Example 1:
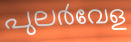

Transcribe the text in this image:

പുലർവേള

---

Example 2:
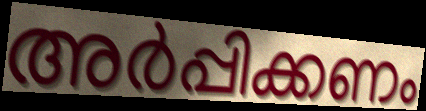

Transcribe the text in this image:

അർപ്പിക്കണം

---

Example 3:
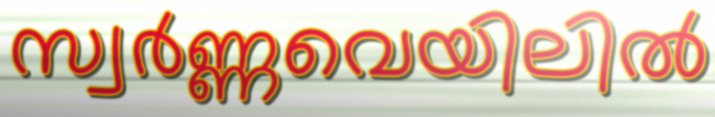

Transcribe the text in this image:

സ്വർണ്ണവെയിലിൽ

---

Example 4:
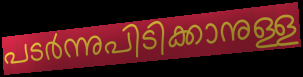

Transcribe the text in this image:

പടർന്നുപിടിക്കാനുള്ള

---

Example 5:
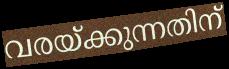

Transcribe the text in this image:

വരയ്ക്കുന്നതിന്